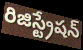
రిజిస్ట్రేషన్